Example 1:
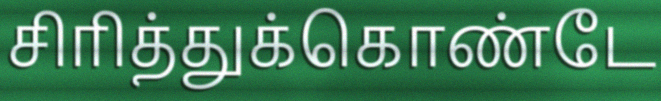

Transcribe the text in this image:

சிரித்துக்கொண்டே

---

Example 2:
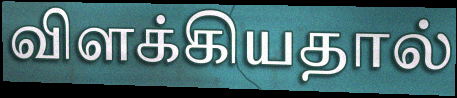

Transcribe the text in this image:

விளக்கியதால்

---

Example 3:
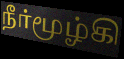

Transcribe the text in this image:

நீர்மூழ்கி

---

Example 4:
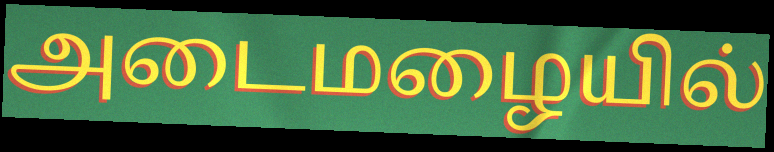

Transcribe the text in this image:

அடைமழையில்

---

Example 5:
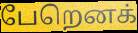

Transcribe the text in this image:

பேறெனக்